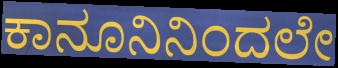
ಕಾನೂನಿನಿಂದಲೇ